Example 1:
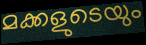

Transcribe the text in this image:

മക്കളുടെയും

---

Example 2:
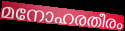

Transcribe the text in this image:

മനോഹരതീരം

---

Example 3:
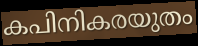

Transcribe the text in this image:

കപിനികരയുതം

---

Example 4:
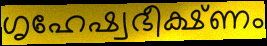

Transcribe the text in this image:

ഗൃഹേഷ്വഭീക്ഷ്ണം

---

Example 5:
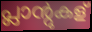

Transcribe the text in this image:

പ്ലാന്റുകള്